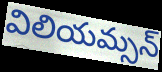
విలియమ్సన్